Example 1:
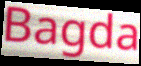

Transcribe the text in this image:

Bagda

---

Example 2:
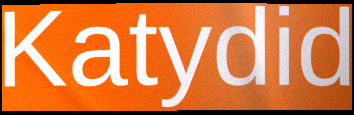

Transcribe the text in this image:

Katydid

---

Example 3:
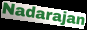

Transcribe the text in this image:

Nadarajan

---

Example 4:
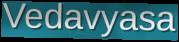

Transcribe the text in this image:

Vedavyasa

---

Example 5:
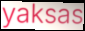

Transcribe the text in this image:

yaksas